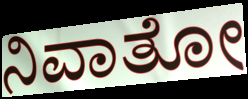
ನಿವಾತೋ